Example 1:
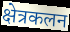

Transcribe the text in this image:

क्षेत्रकलन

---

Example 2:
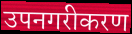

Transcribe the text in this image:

उपनगरीकरण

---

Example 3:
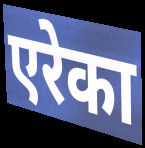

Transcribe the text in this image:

एरेका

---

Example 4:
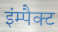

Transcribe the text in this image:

इंम्पैक्ट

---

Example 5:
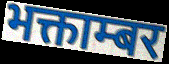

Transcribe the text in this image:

भक्ताम्बर